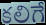
కలిగే